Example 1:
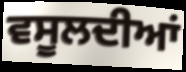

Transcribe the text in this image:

ਵਸੂਲਦੀਆਂ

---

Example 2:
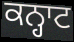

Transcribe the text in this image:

ਕਨ੍ਹਾਟ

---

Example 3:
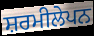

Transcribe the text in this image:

ਸ਼ਰਮੀਲੇਪਨ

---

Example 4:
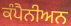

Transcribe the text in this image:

ਕੰਪੈਨੀਅਨ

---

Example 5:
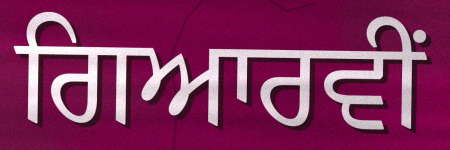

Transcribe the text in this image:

ਗਿਆਰਵੀਂ